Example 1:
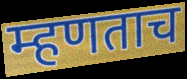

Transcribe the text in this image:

म्हणताच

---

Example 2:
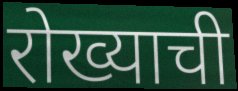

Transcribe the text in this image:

रोख्याची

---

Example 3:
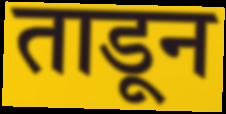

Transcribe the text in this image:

ताडून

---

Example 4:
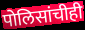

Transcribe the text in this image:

पोलिसांचीही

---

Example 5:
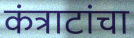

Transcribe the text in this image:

कंत्राटांचा